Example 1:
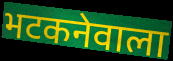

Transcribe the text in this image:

भटकनेवाला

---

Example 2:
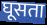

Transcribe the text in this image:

घूसता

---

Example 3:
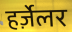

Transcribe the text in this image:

हर्ज़ेलर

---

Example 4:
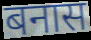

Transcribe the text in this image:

बनास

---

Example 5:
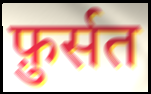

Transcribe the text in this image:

फ़ुर्सत